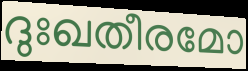
ദുഃഖതീരമോ